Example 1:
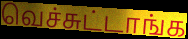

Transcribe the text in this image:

வெச்சுட்டாங்க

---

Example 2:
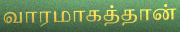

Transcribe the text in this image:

வாரமாகத்தான்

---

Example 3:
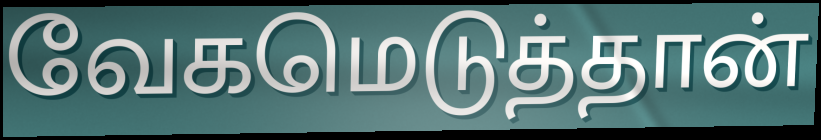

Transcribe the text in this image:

வேகமெடுத்தான்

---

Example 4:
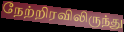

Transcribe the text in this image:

நேற்றிரவிலிருந்து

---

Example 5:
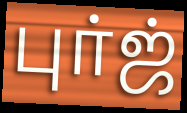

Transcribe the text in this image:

புர்ஜ்